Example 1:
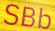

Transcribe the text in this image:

SBb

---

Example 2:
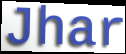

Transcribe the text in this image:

Jhar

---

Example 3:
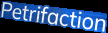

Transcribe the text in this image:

Petrifaction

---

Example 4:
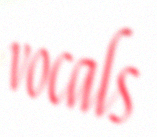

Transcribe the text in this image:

vocals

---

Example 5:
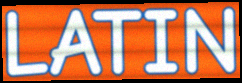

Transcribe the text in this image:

LATIN